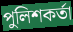
পুলিশকর্তা